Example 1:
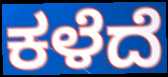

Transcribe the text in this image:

ಕಳೆದೆ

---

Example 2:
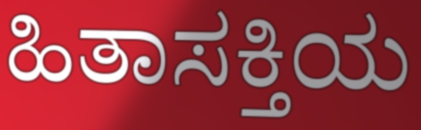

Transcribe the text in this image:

ಹಿತಾಸಕ್ತಿಯ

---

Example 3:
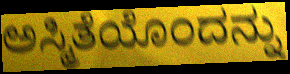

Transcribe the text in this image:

ಅಸ್ಮಿತೆಯೊಂದನ್ನು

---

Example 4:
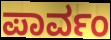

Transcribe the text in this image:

ಪಾರ್ವಂ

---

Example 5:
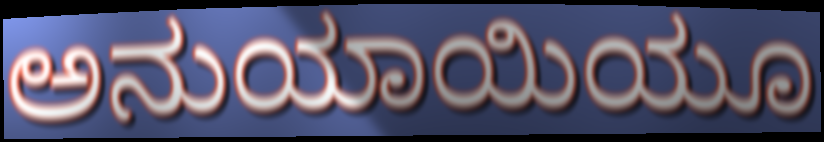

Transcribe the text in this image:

ಅನುಯಾಯಿಯೂ